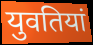
युवतियां